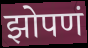
झोपणं